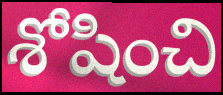
శోషించి